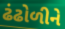
ઢંઢોળીને